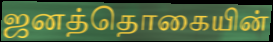
ஜனத்தொகையின்